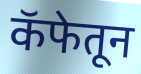
कॅफेतून